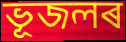
ভূজলৰ